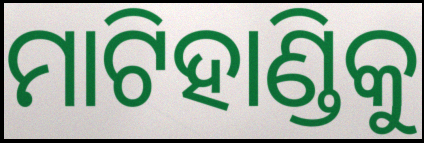
ମାଟିହାଣ୍ଡିକୁ